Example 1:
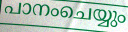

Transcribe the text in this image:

പാനംചെയ്യും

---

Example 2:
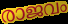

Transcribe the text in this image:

രാജവം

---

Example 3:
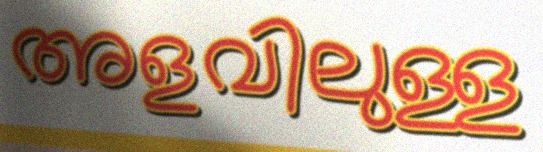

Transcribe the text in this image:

അളവിലുള്ള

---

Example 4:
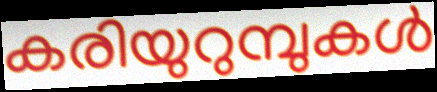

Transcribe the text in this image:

കരിയുറുമ്പുകൾ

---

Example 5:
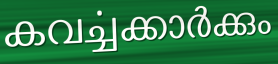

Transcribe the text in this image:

കവൎച്ചക്കാർക്കും